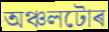
অঞ্চলটোৰ